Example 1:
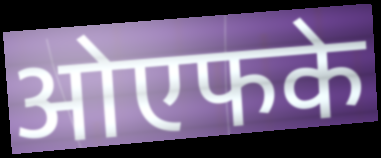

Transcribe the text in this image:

ओएफके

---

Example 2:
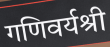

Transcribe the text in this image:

गणिवर्यश्री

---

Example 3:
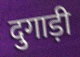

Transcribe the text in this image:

दुगाड़ी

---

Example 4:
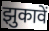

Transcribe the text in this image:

झुकावें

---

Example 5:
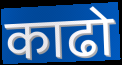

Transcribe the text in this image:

काढो